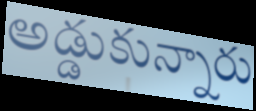
అడ్డుకున్నారు